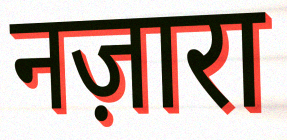
नज़ारा